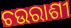
ଚଉରାଶୀ